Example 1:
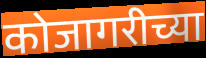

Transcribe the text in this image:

कोजागरीच्या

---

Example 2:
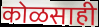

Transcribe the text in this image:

कोळसाही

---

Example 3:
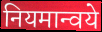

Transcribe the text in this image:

नियमान्वये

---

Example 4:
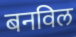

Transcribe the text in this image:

बनविल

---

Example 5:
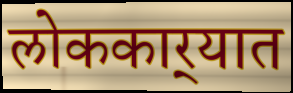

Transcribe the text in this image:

लोककार्यात